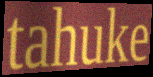
tahuke